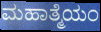
ಮಹಾತ್ಮೆಯಂ